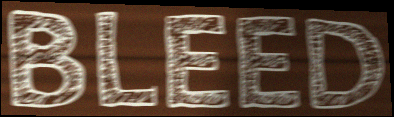
BLEED